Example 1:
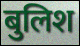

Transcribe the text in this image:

बुलिश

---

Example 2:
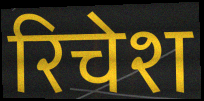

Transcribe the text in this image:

रिचेश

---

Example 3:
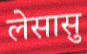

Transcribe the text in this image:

लेसासु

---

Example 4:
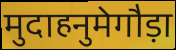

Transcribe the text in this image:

मुदाहनुमेगौड़ा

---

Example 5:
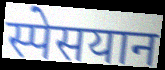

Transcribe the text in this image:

स्पेसयान